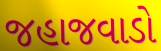
જહાજવાડો